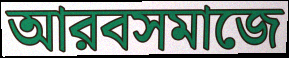
আরবসমাজে